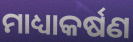
ମାଧ୍ୟାକର୍ଷଣ